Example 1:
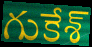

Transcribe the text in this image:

గుకేశ్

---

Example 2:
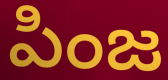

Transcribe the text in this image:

పింజ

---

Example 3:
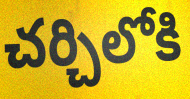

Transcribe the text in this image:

చర్చిలోకి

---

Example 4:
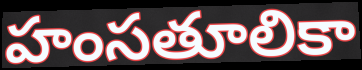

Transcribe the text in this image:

హంసతూలికా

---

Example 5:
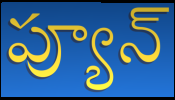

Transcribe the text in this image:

ప్యూన్